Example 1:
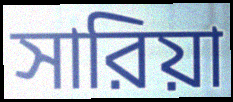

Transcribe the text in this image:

সারিয়া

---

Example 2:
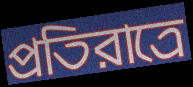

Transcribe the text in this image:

প্রতিরাত্রে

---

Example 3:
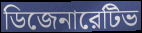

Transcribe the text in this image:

ডিজেনারেটিভ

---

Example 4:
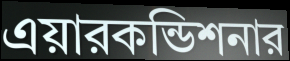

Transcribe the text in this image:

এয়ারকন্ডিশনার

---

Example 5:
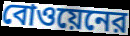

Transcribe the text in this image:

বোওয়েনের